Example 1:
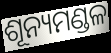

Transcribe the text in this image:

ଶୂନ୍ୟମଣ୍ଡଳ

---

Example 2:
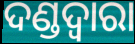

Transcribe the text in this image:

ଦଣ୍ଡଦ୍ବାରା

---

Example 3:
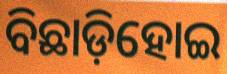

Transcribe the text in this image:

ବିଛାଡ଼ିହୋଇ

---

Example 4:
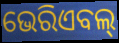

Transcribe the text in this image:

ଭେରିଏବଲ୍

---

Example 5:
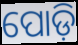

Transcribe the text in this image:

ପୋଡ଼ି